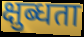
क्षुब्धता